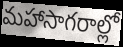
మహాసాగరాల్లో